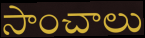
సాంచాలు